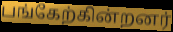
பங்கேற்கின்றனர்